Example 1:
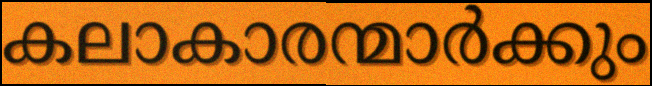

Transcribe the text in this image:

കലാകാരന്മാർക്കും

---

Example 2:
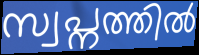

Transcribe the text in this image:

സ്വപ്നത്തിൽ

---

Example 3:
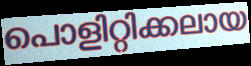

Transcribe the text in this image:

പൊളിറ്റിക്കലായ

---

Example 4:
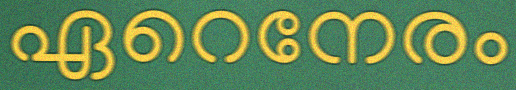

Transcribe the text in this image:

ഏറെനേരം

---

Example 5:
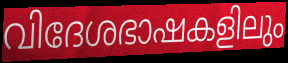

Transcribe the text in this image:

വിദേശഭാഷകളിലും